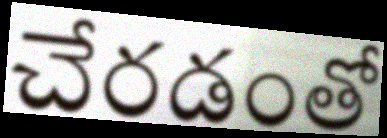
చేరడంతో